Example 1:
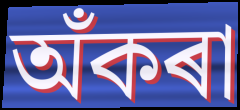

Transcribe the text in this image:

অঁকৰা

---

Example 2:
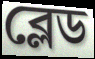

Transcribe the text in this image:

ব্লেড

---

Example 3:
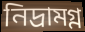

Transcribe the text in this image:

নিদ্ৰামগ্ন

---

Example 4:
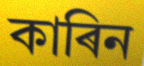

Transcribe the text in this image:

কাৰিন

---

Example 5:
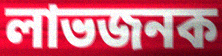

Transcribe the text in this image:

লাভজনক